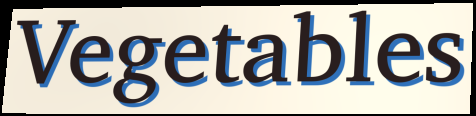
Vegetables